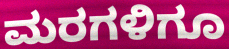
ಮರಗಳಿಗೂ